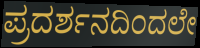
ಪ್ರದರ್ಶನದಿಂದಲೇ